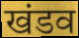
खंडव